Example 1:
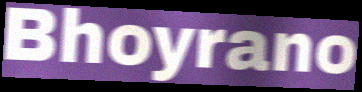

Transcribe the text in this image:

Bhoyrano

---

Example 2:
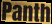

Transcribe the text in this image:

Panth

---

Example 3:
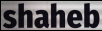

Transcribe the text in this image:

shaheb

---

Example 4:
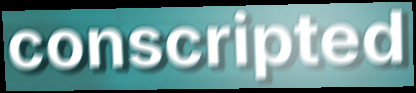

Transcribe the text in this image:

conscripted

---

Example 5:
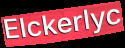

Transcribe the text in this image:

Elckerlyc